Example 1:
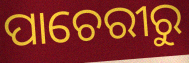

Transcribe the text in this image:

ପାଚେରୀରୁ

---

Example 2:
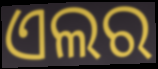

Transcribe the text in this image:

ଏଲର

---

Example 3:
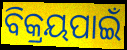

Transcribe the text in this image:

ବିକ୍ରୟପାଇଁ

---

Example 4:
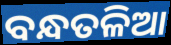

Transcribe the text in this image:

ବନ୍ଧତଳିଆ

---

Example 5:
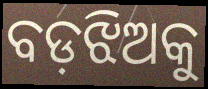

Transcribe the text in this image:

ବଡ଼ଝିଅକୁ